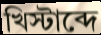
খিস্টাব্দে